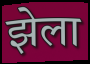
झेला